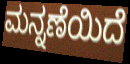
ಮನ್ನಣೆಯಿದೆ